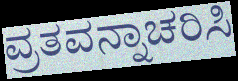
ವ್ರತವನ್ನಾಚರಿಸಿ